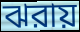
ঝরায়